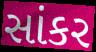
સાંકર